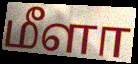
மீளா